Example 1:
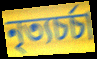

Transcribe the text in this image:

নৃত্যচর্চা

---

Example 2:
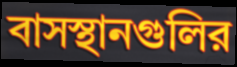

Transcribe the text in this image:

বাসস্থানগুলির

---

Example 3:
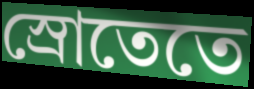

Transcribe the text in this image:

স্রোতেতে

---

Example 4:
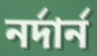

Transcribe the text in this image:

নর্দার্ন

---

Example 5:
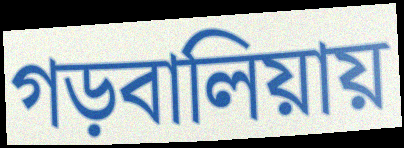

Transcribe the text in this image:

গড়বালিয়ায়